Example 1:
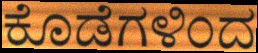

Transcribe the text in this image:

ಕೊಡೆಗಳಿಂದ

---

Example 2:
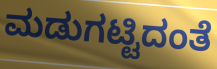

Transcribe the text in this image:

ಮಡುಗಟ್ಟಿದಂತೆ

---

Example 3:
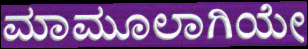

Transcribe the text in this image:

ಮಾಮೂಲಾಗಿಯೇ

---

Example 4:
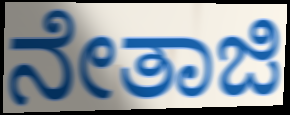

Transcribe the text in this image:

ನೇತಾಜಿ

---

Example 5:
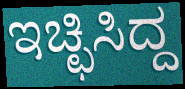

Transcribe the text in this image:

ಇಚ್ಛಿಸಿದ್ದ